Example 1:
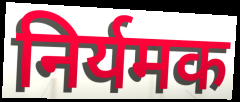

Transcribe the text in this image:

निर्यमक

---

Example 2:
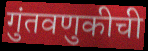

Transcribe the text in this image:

गुंतवणुकीची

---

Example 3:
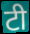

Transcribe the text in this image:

टी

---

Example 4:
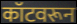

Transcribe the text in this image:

कॉटवरून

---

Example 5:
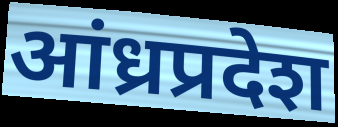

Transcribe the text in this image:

आंध्रप्रदेश